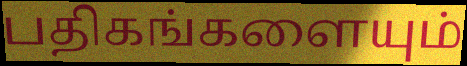
பதிகங்களையும்